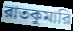
রাতকুমারি